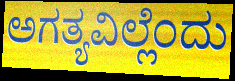
ಅಗತ್ಯವಿಲ್ಲೆಂದು